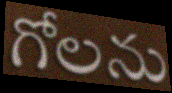
గోలను